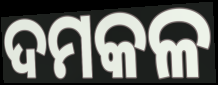
ଦମକଳ